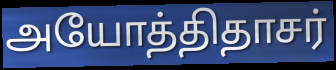
அயோத்திதாசர்